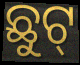
ଛୁଟ୍